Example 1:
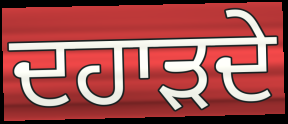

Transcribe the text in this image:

ਦਹਾੜਦੇ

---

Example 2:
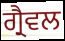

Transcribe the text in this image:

ਗ੍ਰੈਵਲ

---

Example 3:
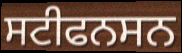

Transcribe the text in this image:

ਸਟੀਫਨਸਨ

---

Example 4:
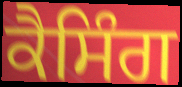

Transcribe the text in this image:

ਕੈਸਿੰਗ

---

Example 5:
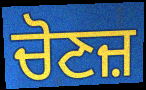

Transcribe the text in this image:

ਚੋਣਜ਼